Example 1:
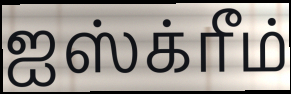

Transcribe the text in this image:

ஐஸ்க்ரீம்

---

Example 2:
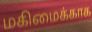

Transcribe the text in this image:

மகிமைக்காக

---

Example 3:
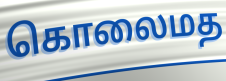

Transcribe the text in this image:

கொலைமத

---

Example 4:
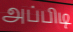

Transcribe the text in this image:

அப்பிடி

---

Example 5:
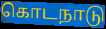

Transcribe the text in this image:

கொடநாடு